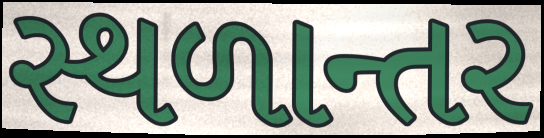
સ્થળાન્તર